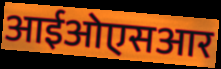
आईओएसआर